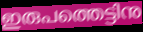
ഇരുപത്തെട്ടിനു